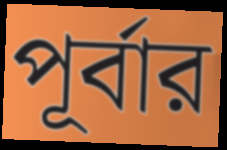
পূর্বার